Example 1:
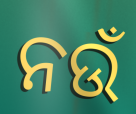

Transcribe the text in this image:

ନଉଁ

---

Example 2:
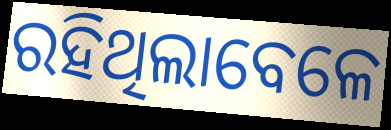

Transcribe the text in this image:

ରହିଥିଲାବେଳେ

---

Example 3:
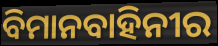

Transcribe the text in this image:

ବିମାନବାହିନୀର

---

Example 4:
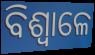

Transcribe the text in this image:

ବିଶ୍ଵାଳେ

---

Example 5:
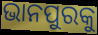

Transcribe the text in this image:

ଭାନପୁରକୁ